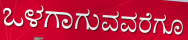
ಒಳಗಾಗುವವರೆಗೂ